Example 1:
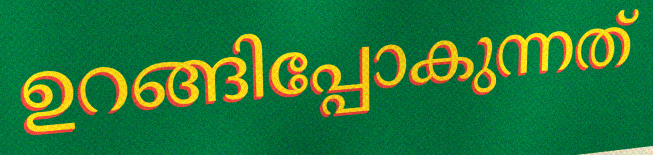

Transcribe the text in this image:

ഉറങ്ങിപ്പോകുന്നത്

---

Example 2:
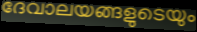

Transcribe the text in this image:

ദേവാലയങ്ങളുടെയും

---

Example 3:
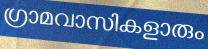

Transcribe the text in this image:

ഗ്രാമവാസികളാരും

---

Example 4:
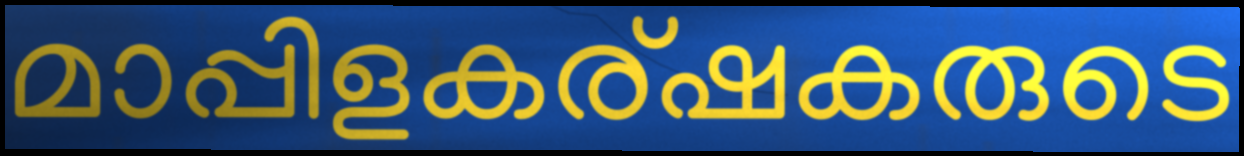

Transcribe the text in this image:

മാപ്പിളകര്ഷകരുടെ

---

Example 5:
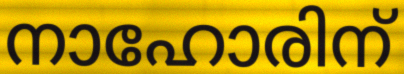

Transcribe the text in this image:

നാഹോരിന്